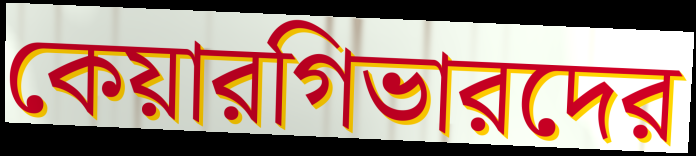
কেয়ারগিভারদের